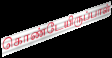
கொண்டேயிருப்பாள்